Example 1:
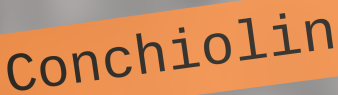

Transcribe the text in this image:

Conchiolin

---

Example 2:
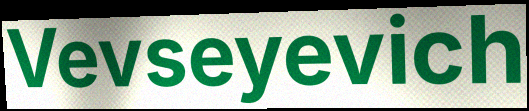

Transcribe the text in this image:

Vevseyevich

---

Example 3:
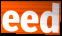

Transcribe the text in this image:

eed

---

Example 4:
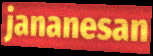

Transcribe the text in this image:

jananesan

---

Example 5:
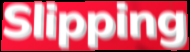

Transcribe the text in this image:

Slipping